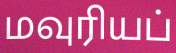
மவுரியப்